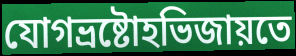
যোগভ্রষ্টোহভিজায়তে